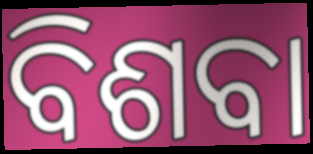
ବିଶବା